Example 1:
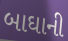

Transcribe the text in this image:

બાઘાની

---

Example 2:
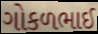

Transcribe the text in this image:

ગોકળભાઈ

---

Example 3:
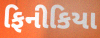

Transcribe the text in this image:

ફિનીકિયા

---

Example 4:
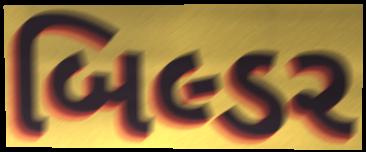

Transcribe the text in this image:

બિલ્ડર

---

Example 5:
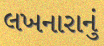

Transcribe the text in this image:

લખનારાનું